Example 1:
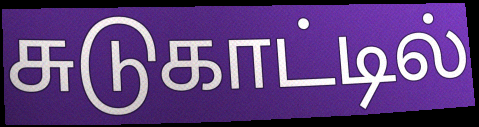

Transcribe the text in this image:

சுடுகாட்டில்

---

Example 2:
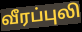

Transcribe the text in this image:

வீரப்புலி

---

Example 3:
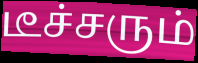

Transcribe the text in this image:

டீச்சரும்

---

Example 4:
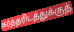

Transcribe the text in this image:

கர்த்தரிடத்துக்குத்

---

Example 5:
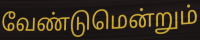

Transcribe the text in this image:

வேண்டுமென்றும்